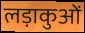
लड़ाकुओं